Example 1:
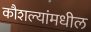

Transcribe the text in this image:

कौशल्यांमधील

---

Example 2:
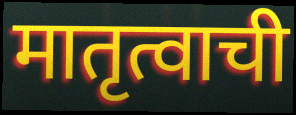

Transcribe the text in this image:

मातृत्वाची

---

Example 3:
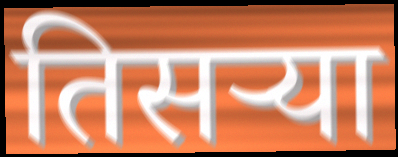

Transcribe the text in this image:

तिसऱ्या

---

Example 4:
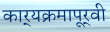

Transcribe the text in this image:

कार्यक्रमापूर्वी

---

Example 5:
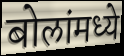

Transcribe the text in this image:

बोलांमध्ये